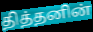
தித்தனின்